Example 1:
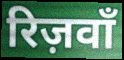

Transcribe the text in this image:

रिज़वाँ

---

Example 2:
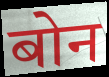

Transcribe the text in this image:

बोन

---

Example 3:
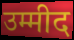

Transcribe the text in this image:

उम्मीद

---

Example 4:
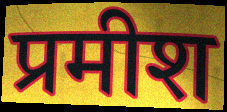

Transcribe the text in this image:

प्रमीश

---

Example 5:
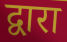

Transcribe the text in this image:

द्वारा